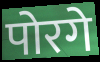
पोरगे